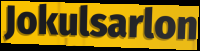
Jokulsarlon